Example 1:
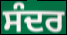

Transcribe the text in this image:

ਸੰਦਰ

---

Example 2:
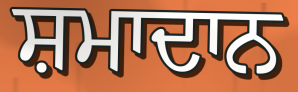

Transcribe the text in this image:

ਸ਼ਮਾਦਾਨ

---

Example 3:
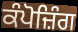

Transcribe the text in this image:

ਕੰਪੋਜ਼ਿੰਗ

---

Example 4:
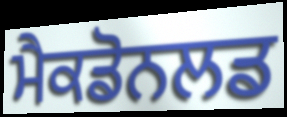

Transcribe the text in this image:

ਮੈਕਡੋਨਲਡ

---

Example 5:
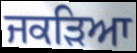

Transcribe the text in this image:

ਜਕੜਿਆ